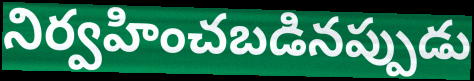
నిర్వహించబడినప్పుడు